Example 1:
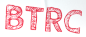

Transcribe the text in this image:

BTRC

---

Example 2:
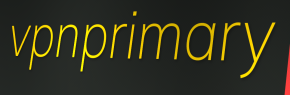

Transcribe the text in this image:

vpnprimary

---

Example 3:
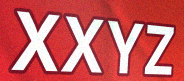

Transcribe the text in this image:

XXYZ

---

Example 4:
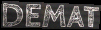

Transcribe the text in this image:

DEMAT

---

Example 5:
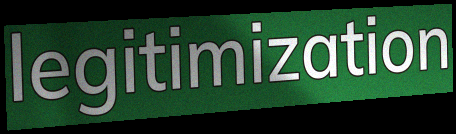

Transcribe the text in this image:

legitimization